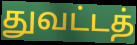
துவட்டத்